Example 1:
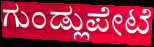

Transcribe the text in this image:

ಗುಂಡ್ಲುಪೇಟೆ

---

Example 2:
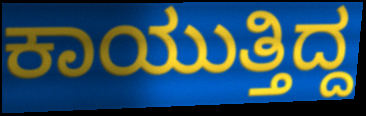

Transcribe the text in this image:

ಕಾಯುತ್ತಿದ್ದ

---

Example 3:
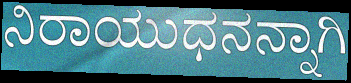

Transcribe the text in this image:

ನಿರಾಯುಧನನ್ನಾಗಿ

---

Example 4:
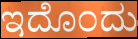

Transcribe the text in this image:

ಇದೊಂದು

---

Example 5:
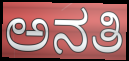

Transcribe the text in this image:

ಅನತಿ